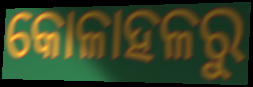
କୋଳାହଳରୁ